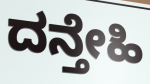
ದನ್ತೇಹಿ